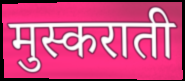
मुस्कराती